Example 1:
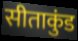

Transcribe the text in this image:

सीताकुंड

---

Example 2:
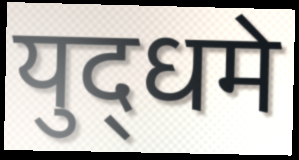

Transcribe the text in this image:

युद्धमे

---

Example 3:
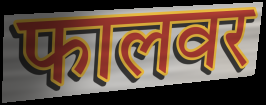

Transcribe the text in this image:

फालवर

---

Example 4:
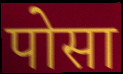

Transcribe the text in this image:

पोसा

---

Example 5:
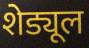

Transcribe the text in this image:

शेड्यूल